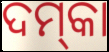
ଦମ୍‌କା